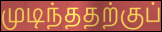
முடிந்ததற்குப்